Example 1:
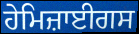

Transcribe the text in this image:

ਹੇਮਿਜ਼ਾਈਗਸ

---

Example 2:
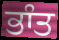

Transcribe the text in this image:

ਭਾੰਤ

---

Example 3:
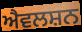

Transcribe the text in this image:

ਐਵਲਸ਼ਨ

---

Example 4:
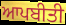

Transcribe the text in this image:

ਆਪਬੀਤੀ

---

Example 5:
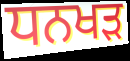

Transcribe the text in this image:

ਧਨਖੜ